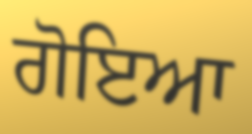
ਗੋਇਆ